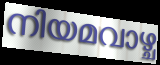
നിയമവാഴ്ച